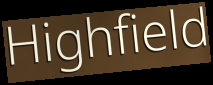
Highfield